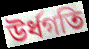
উর্ধগতি